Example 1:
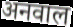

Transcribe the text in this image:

अनवाल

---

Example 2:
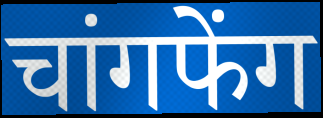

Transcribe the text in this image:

चांगफेंग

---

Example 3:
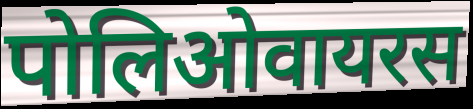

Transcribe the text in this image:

पोलिओवायरस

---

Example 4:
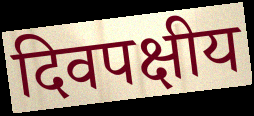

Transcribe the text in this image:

दिवपक्षीय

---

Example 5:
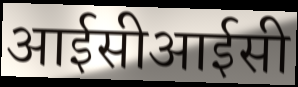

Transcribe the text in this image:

आईसीआईसी